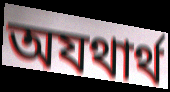
অযথার্থ